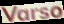
Varso